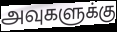
அவுகளுக்கு